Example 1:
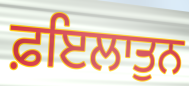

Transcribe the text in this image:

ਫ਼ਇਲਾਤੁਨ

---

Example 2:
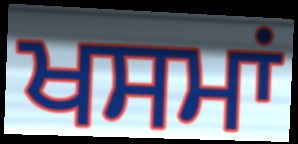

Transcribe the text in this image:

ਖਸਮਾਂ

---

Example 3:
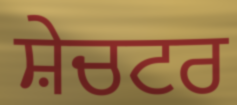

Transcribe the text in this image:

ਸ਼ੇਚਟਰ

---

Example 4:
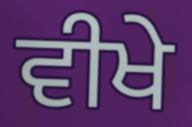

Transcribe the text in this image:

ਵੀਖੇ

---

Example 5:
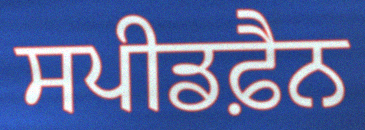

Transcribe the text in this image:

ਸਪੀਡਫ਼ੈਨ